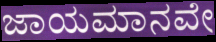
ಜಾಯಮಾನವೇ